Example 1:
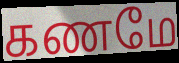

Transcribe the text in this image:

கணமே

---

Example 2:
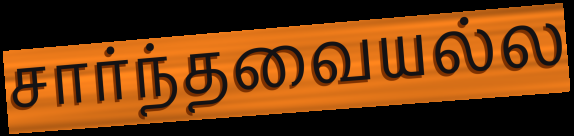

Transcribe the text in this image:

சார்ந்தவையல்ல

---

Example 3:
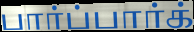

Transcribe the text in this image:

பார்ப்பார்க்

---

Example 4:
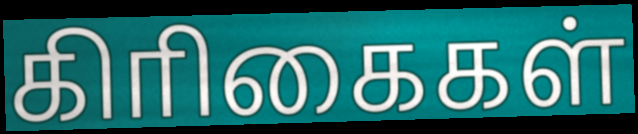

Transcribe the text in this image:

கிரிகைகள்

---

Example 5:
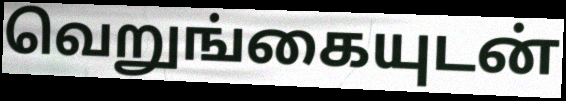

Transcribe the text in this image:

வெறுங்கையுடன்